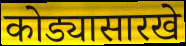
कोड्यासारखे